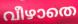
വീഴാതെ